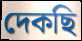
দেকছি